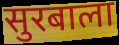
सुरबाला